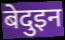
बेदुइन